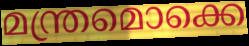
മന്ത്രമൊക്കെ